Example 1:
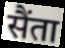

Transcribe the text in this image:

सैंता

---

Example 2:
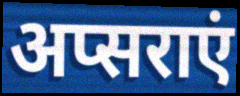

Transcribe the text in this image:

अप्सराएं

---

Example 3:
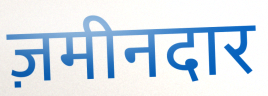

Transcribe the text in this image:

ज़मीनदार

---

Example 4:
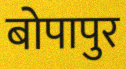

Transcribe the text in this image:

बोपापुर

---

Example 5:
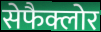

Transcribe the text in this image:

सेफैक्लोर